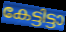
കേട്ടിട്ടാ